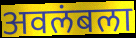
अवलंबला